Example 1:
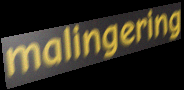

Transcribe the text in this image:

malingering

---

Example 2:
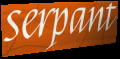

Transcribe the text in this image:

serpant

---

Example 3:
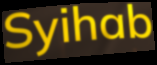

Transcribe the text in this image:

Syihab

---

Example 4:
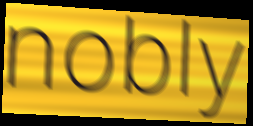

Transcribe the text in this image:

nobly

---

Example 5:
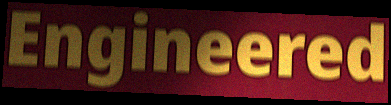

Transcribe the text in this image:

Engineered